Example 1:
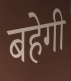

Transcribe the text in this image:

बहेगी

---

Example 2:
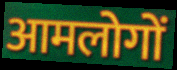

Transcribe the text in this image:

आमलोगों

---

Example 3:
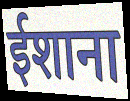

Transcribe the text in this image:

ईशाना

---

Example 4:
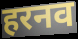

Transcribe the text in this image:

हरनव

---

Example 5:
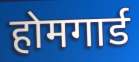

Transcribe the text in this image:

होमगार्ड